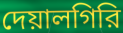
দেয়ালগিরি